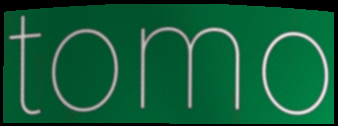
tomo